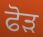
ਫੋਡ਼